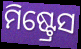
ମିଷ୍ଟ୍ରେସ